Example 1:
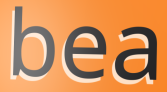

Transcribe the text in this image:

bea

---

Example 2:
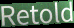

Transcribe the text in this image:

Retold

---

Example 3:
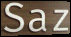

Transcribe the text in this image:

Saz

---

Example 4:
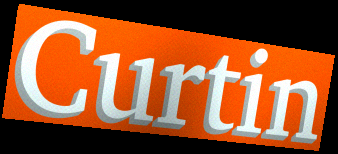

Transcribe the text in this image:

Curtin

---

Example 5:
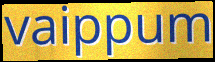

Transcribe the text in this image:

vaippum